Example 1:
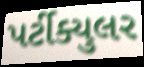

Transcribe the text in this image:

પર્ટીક્યુલર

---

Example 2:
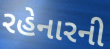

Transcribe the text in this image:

રહેનારની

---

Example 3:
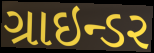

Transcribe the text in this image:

ગ્રાઇન્ડર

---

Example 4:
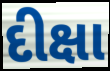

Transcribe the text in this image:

દીક્ષા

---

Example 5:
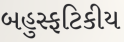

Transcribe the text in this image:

બહુસ્ફટિકીય